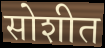
सोशीत